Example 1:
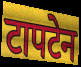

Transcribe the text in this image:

टापटेन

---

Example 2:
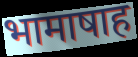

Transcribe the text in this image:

भामाषाह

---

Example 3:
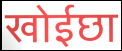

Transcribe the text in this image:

खोईछा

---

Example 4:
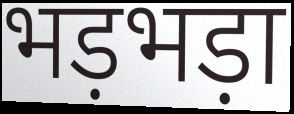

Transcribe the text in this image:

भड़भड़ा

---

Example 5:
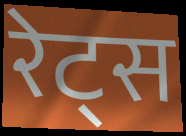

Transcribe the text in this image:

रेट्स